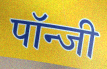
पॉन्जी